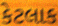
કેટલાક